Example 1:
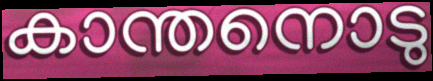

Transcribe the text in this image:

കാന്തനൊടു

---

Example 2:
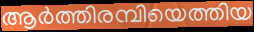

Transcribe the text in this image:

ആർത്തിരമ്പിയെത്തിയ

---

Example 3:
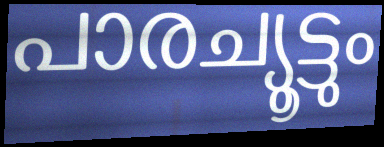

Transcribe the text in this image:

പാരച്യൂട്ടും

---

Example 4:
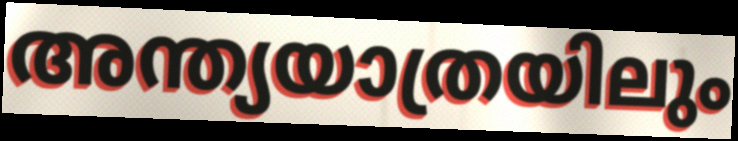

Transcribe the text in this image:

അന്ത്യയാത്രയിലും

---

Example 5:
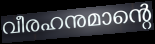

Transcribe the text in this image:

വീരഹനുമാന്റെ